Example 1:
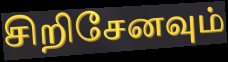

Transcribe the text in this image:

சிறிசேனவும்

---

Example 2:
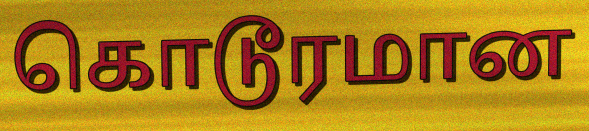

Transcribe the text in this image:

கொடூரமான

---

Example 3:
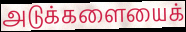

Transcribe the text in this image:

அடுக்களையைக்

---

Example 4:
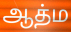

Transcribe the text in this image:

ஆத்ம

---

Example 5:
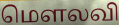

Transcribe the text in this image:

மௌலவி